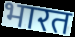
भारत